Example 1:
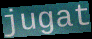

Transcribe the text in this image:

jugat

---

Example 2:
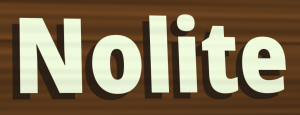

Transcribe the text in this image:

Nolite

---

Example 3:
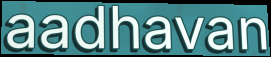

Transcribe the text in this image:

aadhavan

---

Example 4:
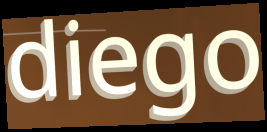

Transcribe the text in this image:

diego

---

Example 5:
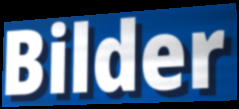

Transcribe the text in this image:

Bilder